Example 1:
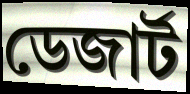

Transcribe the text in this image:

ডেজার্ট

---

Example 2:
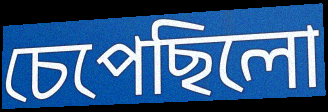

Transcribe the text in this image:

চেপেছিলো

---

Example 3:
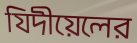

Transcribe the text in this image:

যিদীয়েলের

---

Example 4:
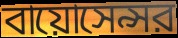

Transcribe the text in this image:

বায়োসেন্সর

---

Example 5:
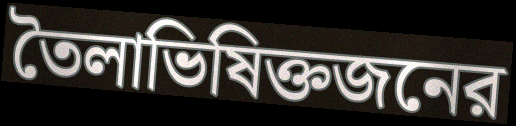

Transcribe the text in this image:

তৈলাভিষিক্তজনের